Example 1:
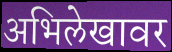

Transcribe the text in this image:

अभिलेखावर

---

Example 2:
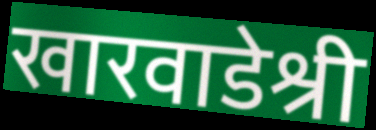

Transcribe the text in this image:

खारवाडेश्री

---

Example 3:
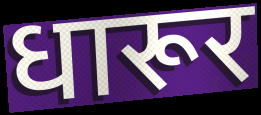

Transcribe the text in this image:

धारूर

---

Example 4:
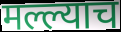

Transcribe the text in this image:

मल्ल्याच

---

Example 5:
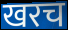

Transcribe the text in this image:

खरच